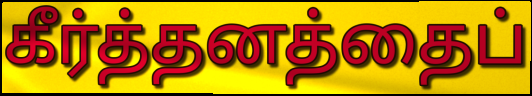
கீர்த்தனத்தைப்